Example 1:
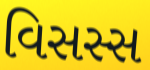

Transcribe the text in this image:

વિસસ્સ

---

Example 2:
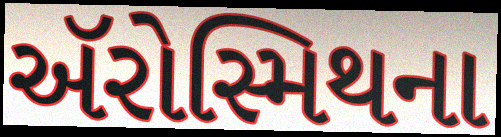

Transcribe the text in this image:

ઍરોસ્મિથના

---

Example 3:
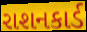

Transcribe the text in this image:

રાશનકાર્ડ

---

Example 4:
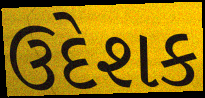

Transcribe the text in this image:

ઉદેશક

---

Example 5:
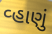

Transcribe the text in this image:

વ્હાણું